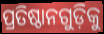
ପ୍ରତିଷ୍ଠାନଗୁଡ଼ିକୁ